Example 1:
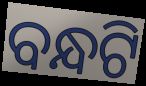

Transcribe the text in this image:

ବନ୍ଧଟି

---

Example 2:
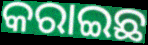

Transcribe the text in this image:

କରାଇଛ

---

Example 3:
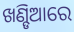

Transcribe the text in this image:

ଖଣ୍ଡିଆରେ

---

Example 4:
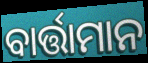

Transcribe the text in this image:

ବାର୍ତ୍ତାମାନ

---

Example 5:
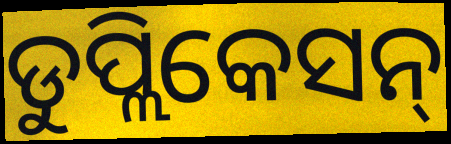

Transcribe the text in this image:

ଡୁପ୍ଲିକେସନ୍